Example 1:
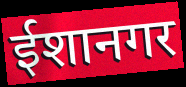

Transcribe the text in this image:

ईशानगर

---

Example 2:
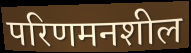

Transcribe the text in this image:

परिणमनशील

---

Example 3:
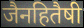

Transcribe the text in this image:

जैनहितैषी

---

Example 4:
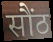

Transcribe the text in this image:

सौंठ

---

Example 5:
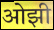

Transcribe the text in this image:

ओझी